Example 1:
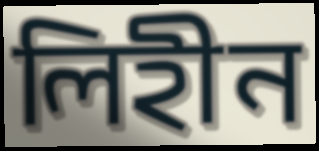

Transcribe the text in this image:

লিহীন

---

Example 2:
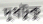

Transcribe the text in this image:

দুধটুকু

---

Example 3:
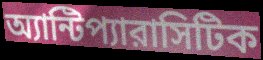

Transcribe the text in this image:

অ্যান্টিপ্যারাসিটিক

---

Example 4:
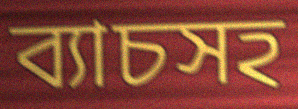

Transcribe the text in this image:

ব্যাচসহ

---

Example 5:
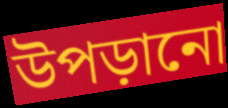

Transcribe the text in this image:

উপড়ানো